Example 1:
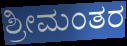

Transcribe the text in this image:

ಶ್ರೀಮಂತರ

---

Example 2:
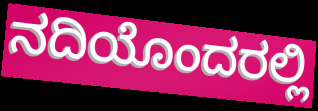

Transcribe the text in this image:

ನದಿಯೊಂದರಲ್ಲಿ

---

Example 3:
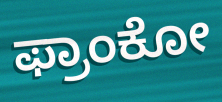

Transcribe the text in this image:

ಫ್ರಾಂಕೋ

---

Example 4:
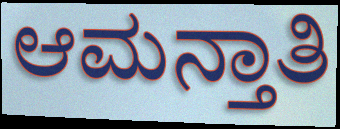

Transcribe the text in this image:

ಆಮನ್ತಾತಿ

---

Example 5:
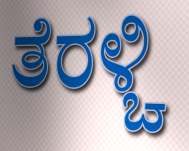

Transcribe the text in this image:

ತೆರಳ್ಚಿ